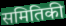
समितिकी